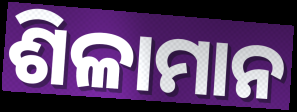
ଶିଳାମାନ